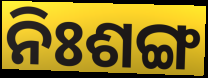
ନିଃଶଙ୍ଗ